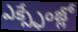
ఎక్స్ఛేంజ్లో